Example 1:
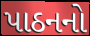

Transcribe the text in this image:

પાઠનનો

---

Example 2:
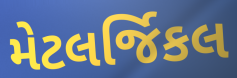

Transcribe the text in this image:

મેટલર્જિકલ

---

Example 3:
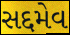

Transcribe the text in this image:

સદ્દમેવ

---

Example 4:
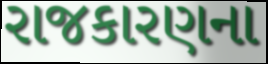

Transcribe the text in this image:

રાજકારણના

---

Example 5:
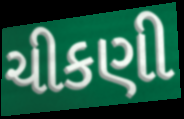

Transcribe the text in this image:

ચીકણી